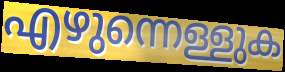
എഴുന്നെള്ളുക